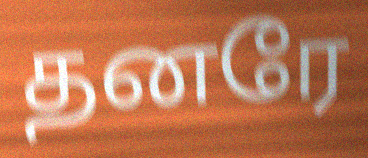
தனரே